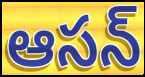
ఆసన్